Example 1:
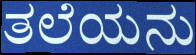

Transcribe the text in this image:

ತಲೆಯನು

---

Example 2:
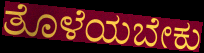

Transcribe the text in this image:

ತೊಳೆಯಬೇಕು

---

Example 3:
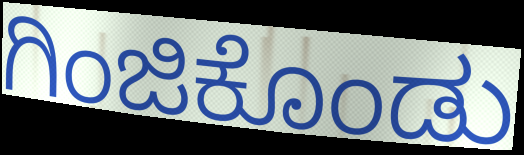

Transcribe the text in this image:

ಗಿಂಜಿಕೊಂಡು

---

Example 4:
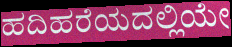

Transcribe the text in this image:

ಹದಿಹರೆಯದಲ್ಲಿಯೇ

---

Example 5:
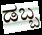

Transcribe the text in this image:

ಡಬ್ಬ